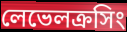
লেভেলক্রসিং